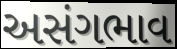
અસંગભાવ